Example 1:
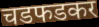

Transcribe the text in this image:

चडफडकर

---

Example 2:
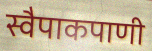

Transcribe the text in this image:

स्वैपाकपाणी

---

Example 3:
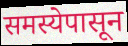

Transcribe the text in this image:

समस्येपासून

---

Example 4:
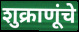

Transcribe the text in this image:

शुक्राणूंचे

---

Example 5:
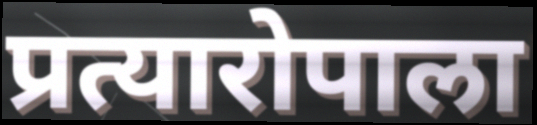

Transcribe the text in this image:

प्रत्यारोपाला